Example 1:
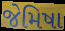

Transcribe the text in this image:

જેમિષા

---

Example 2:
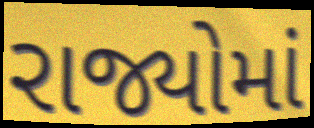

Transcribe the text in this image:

રાજ્યોમાં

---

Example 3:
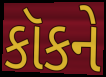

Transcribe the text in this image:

કૉકને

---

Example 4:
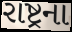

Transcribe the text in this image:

રાષ્ટ્રના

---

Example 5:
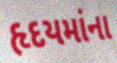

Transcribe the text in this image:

હૃદયમાંના